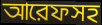
আরেফসহ